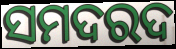
ସମଦରଦ